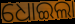
ଧୋଇଲା